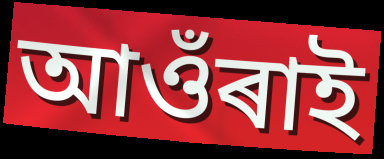
আওঁৰাই